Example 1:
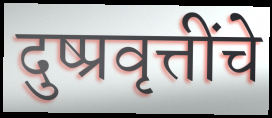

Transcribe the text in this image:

दुष्प्रवृत्तींचे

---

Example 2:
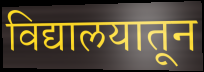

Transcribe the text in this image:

विद्यालयातून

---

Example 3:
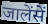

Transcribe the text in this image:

जालेंसें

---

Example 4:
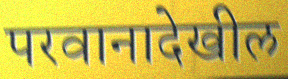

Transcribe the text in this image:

परवानादेखील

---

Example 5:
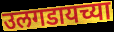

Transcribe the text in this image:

उलगडायच्या